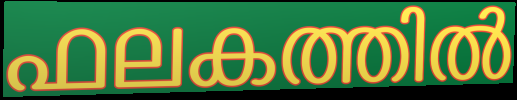
ഫലകത്തിൽ